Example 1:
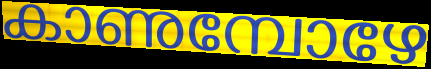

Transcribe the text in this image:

കാണുമ്പോഴേ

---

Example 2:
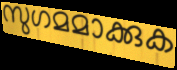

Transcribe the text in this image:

സുഗമമാക്കുക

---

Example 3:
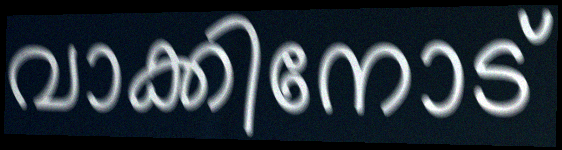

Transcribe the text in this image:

വാക്കിനോട്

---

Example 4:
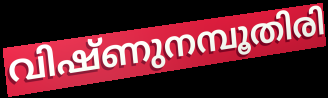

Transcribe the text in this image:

വിഷ്ണുനമ്പൂതിരി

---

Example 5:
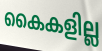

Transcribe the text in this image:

കൈകളില്ല